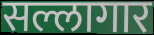
सल्‍लागार